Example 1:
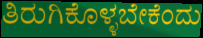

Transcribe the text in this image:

ತಿರುಗಿಕೊಳ್ಳಬೇಕೆಂದು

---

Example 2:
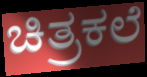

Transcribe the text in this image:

ಚಿತ್ರಕಲೆ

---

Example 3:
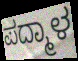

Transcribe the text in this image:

ಪದ್ಮಾಳ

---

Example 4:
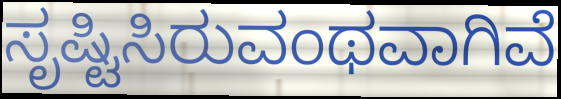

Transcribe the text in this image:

ಸೃಷ್ಟಿಸಿರುವಂಥವಾಗಿವೆ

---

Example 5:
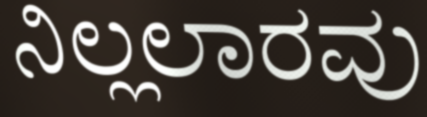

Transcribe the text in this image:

ನಿಲ್ಲಲಾರವು